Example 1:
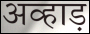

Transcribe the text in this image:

अव्हाड़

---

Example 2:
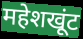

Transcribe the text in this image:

महेशखूंट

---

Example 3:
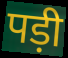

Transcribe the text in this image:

पड़ी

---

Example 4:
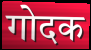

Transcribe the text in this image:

गोदक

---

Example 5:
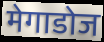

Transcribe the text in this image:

मेगाडोज